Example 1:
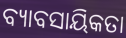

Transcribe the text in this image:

ବ୍ୟାବସାୟିକତା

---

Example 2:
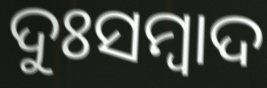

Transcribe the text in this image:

ଦୁଃସମ୍ୱାଦ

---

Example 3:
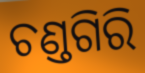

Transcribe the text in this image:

ଚଣ୍ଡଗିରି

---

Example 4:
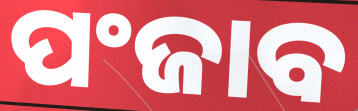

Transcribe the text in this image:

ପଂଜାବ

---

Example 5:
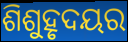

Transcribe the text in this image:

ଶିଶୁହୃଦୟର